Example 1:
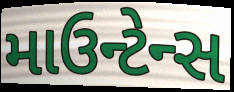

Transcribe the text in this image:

માઉન્ટેન્સ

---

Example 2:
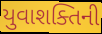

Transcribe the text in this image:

યુવાશક્તિની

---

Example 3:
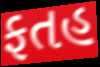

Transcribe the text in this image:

ફતહ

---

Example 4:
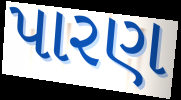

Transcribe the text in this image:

પારણ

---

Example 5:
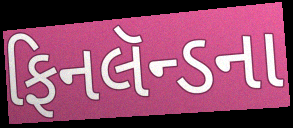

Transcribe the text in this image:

ફિનલૅન્ડના